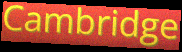
Cambridge